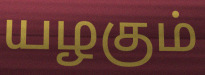
யழகும்